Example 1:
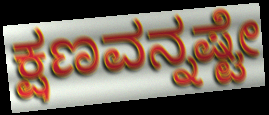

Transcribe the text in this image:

ಕ್ಷಣವನ್ನಷ್ಟೇ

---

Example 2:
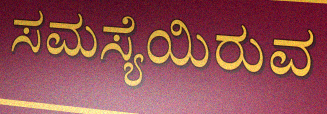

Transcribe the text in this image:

ಸಮಸ್ಯೆಯಿರುವ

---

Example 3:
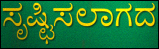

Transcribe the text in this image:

ಸೃಷ್ಟಿಸಲಾಗದ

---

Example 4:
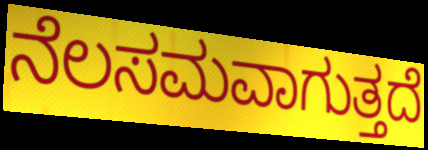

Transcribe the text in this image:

ನೆಲಸಮವಾಗುತ್ತದೆ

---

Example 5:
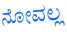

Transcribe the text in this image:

ನೋವಲ್ಲ